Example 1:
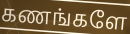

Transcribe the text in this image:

கணங்களே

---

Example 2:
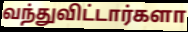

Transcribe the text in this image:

வந்துவிட்டார்களா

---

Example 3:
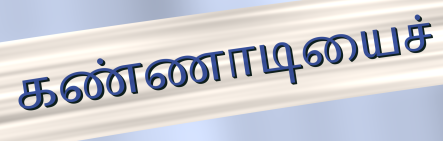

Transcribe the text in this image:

கண்ணாடியைச்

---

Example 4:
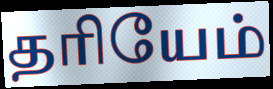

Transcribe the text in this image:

தரியேம்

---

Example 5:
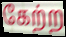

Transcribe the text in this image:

கேற்ற